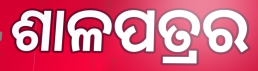
ଶାଳପତ୍ରର